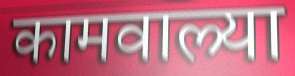
कामवाल्या